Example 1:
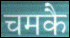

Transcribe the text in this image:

चमकै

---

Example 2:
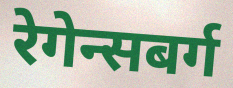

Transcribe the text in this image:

रेगेन्सबर्ग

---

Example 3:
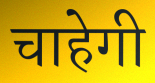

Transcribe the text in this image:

चाहेगी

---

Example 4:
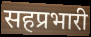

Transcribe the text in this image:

सहप्रभारी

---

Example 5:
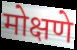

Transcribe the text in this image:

मोक्षणे